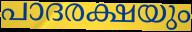
പാദരക്ഷയും